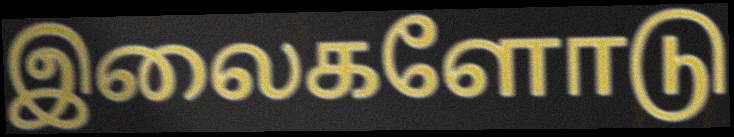
இலைகளோடு